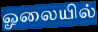
ஓலையில்